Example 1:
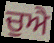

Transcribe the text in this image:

ਚੁਐ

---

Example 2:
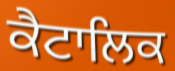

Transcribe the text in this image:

ਕੈਟਾਲਿਕ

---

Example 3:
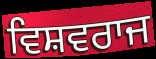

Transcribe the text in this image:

ਵਿਸ਼ਵਰਾਜ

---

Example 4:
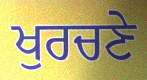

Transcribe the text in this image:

ਖੁਰਚਣੇ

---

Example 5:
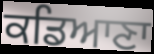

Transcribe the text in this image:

ਕਡਿਆਣਾ